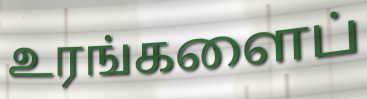
உரங்களைப்